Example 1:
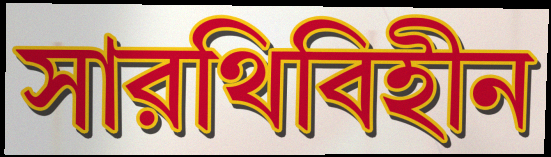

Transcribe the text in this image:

সারথিবিহীন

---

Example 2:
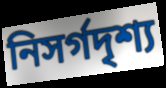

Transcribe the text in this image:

নিসর্গদৃশ্য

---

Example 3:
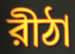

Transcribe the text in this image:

রীঠা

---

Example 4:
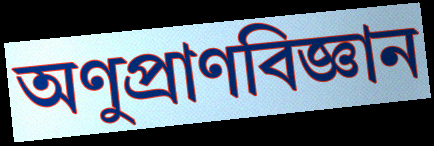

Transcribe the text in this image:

অণুপ্রাণবিজ্ঞান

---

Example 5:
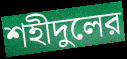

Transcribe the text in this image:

শহীদুলের